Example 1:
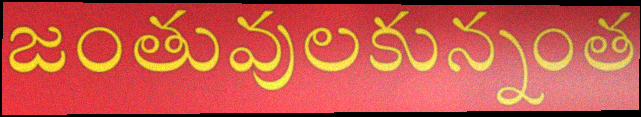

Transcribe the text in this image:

జంతువులకున్నంత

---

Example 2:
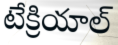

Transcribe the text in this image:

టేక్రియాల్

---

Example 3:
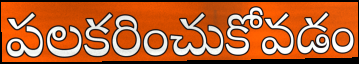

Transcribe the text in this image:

పలకరించుకోవడం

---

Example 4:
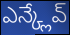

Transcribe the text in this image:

ఎన్క్లేవ్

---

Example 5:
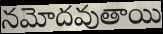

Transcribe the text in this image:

నమోదవుతాయి